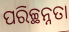
ପରିଚ୍ଛନ୍ନତା